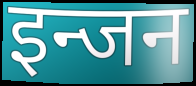
इन्जन